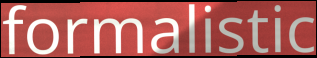
formalistic